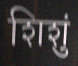
शिशुं